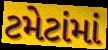
ટમેટાંમાં